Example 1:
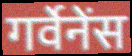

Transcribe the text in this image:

गर्वेनेंस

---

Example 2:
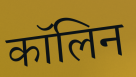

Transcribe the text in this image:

कॉलिन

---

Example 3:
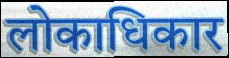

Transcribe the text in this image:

लोकाधिकार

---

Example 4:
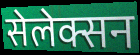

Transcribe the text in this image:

सेलेक्सन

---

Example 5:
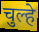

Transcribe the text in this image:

चुल्हे